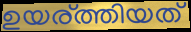
ഉയര്ത്തിയത്